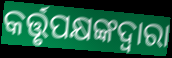
କର୍ତ୍ତୃପକ୍ଷଙ୍କଦ୍ଵାରା